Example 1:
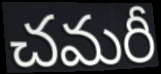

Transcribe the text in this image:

చమరీ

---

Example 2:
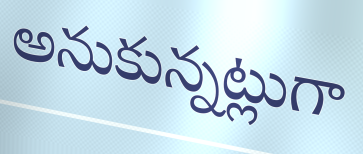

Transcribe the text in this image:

అనుకున్నట్లుగా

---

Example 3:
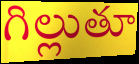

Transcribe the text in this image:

గిల్లుతూ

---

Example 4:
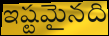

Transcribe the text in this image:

ఇష్టమైనది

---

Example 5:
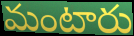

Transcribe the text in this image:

మంటారు